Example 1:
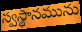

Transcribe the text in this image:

స్వస్థానమును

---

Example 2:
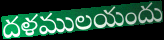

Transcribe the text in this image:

దళములయందు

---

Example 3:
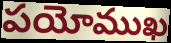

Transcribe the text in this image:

పయోముఖ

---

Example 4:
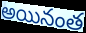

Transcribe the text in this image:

అయినంత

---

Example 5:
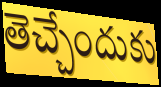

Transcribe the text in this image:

తెచ్చేందుకు